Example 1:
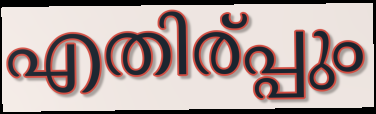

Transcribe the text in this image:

എതിര്പ്പും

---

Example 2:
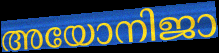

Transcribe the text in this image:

അയോനിജാ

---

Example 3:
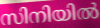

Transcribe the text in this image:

സിനിയിൽ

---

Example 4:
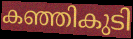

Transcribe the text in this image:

കഞ്ഞികുടി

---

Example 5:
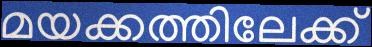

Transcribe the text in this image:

മയക്കത്തിലേക്ക്